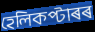
হেলিকপ্টাৰৰ